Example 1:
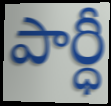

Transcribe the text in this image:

పార్ధీ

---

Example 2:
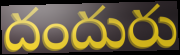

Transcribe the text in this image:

దందురు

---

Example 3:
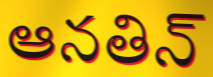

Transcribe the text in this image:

ఆనతిన్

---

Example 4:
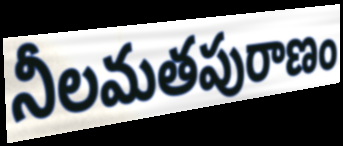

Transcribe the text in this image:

నీలమతపురాణం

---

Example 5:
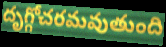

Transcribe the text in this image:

దృగ్గోచరమవుతుంది